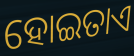
ହୋଇତାଏ